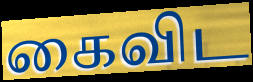
கைவிட